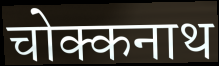
चोक्कनाथ